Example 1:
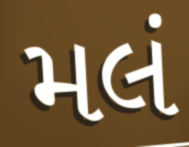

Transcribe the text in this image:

મલં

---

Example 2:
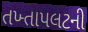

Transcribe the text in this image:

તખ્તાપલટની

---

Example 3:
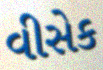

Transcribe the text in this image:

વીસેક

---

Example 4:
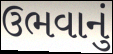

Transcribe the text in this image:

ઉભવાનું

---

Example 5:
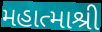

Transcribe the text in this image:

મહાત્માશ્રી